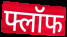
फ्लॉफ